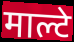
माल्टे